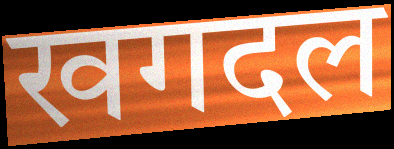
खगदल